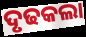
ଦୃଢକଲା